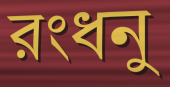
রংধনু